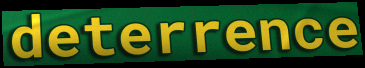
deterrence